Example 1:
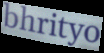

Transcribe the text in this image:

bhrityo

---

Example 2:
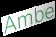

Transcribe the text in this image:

Ambe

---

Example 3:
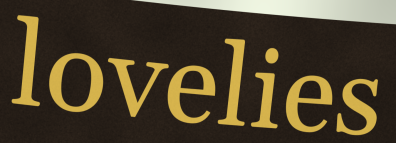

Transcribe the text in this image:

lovelies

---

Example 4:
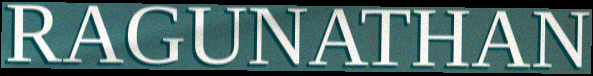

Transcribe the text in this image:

RAGUNATHAN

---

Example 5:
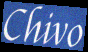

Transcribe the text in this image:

Chivo